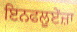
ਇਨਫਲੂਏਂਜ਼ਾ